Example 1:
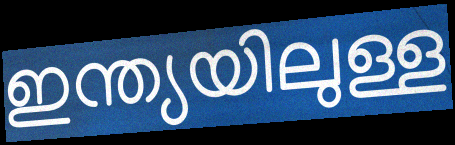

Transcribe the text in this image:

ഇന്ത്യയിലുള്ള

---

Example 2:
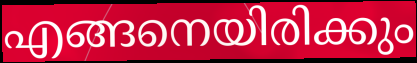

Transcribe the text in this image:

എങ്ങനെയിരിക്കും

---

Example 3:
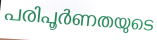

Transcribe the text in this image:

പരിപൂർണതയുടെ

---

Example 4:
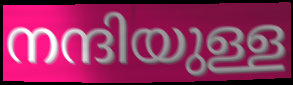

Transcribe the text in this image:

നന്ദിയുള്ള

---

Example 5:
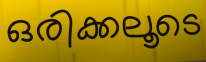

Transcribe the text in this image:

ഒരിക്കലൂടെ